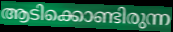
ആടിക്കൊണ്ടിരുന്ന